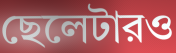
ছেলেটারও